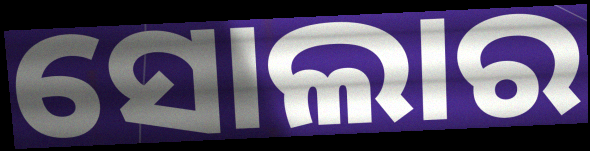
ସୋଲାର